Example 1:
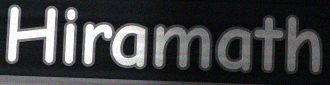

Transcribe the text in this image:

Hiramath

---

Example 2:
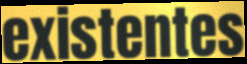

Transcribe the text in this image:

existentes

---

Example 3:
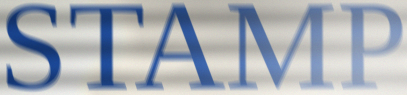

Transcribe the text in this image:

STAMP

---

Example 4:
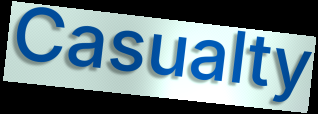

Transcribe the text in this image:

Casualty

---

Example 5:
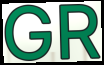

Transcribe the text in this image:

GR